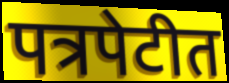
पत्रपेटीत